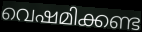
വെഷമിക്കണ്ട